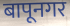
बापूनगर